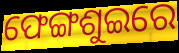
ଫେଙ୍ଗଶୁଇରେ